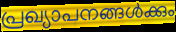
പ്രഖ്യാപനങ്ങൾക്കും